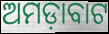
ଅମଡ଼ାବାଟ